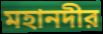
মহানদীর